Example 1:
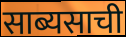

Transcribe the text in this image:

साब्यसाची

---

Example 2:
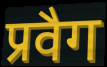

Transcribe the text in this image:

प्रवैग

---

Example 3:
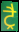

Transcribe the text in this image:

ट्रै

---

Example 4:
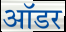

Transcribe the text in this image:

ऑडर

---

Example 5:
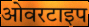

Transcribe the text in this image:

ओवरटाइप